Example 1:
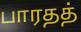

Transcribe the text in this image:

பாரதத்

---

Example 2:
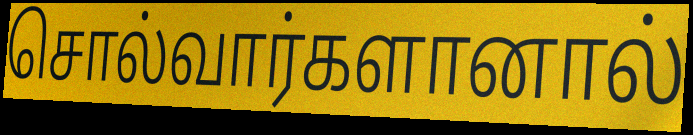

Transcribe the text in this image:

சொல்வார்களானால்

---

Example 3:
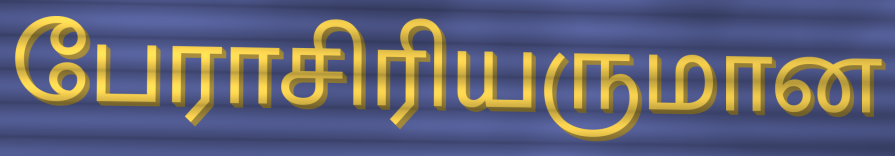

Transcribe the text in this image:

பேராசிரியருமான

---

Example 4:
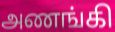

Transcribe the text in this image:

அணங்கி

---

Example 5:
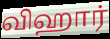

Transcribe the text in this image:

விஹார்